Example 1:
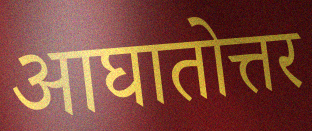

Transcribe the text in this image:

आघातोत्तर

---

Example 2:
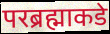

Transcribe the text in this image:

परब्रह्माकडे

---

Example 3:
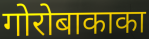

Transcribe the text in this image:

गोरोबाकाका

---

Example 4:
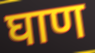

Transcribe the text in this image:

घाण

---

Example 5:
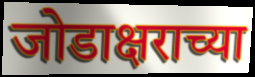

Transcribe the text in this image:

जोडाक्षराच्या